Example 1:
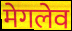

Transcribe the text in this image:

मेगलेव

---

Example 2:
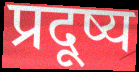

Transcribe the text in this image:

प्रदूष्य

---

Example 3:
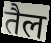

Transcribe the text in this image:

तैल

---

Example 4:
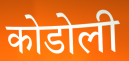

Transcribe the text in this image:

कोडोली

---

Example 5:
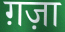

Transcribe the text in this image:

ग़ज़ा